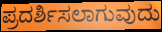
ಪ್ರದರ್ಶಿಸಲಾಗುವುದು